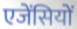
एजेंसियों